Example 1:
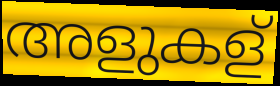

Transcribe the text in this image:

അളുകള്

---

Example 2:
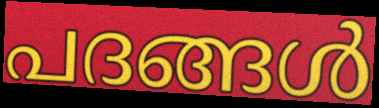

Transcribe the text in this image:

പദങ്ങൾ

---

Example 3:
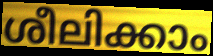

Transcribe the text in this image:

ശീലിക്കാം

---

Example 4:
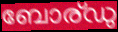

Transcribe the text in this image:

ബോര്ഡു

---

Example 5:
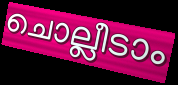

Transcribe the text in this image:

ചൊല്ലീടാം